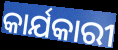
କାର୍ଯକାରୀ